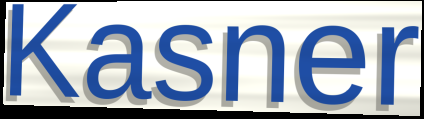
Kasner